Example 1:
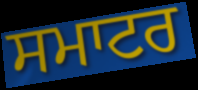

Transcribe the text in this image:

ਸਮਾਟਰ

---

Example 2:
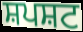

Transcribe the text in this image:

ਸ਼ਪਸ਼ਟ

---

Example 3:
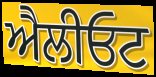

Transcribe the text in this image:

ਐਲੀਓਟ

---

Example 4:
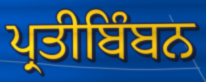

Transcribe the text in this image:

ਪ੍ਰਤੀਬਿੰਬਨ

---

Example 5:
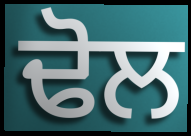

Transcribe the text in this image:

ਢੋਲ